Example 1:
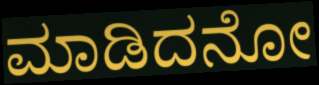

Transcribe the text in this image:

ಮಾಡಿದನೋ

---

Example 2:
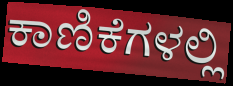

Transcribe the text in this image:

ಕಾಣಿಕೆಗಳಲ್ಲಿ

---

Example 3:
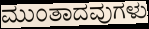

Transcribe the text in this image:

ಮುಂತಾದವುಗಳು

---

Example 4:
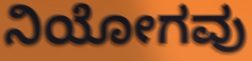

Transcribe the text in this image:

ನಿಯೋಗವು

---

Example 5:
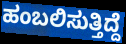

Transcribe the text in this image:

ಹಂಬಲಿಸುತ್ತಿದ್ದೆ